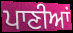
ਪਾਣੀਆਂ